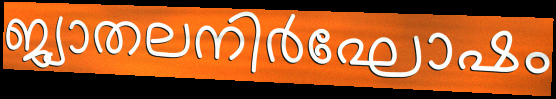
ജ്യാതലനിർഘോഷം